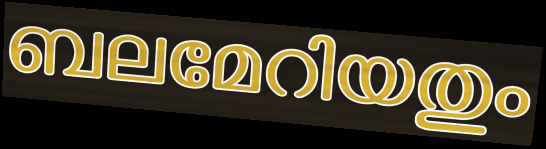
ബലമേറിയതും